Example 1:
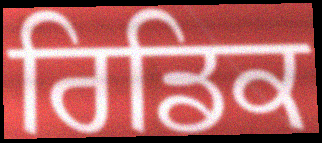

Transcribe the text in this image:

ਰਿਡਿਕ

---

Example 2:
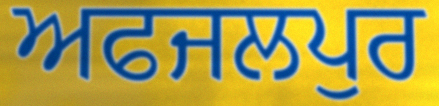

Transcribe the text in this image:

ਅਫਜਲਪੁਰ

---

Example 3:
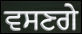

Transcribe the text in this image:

ਵਸਣਗੇ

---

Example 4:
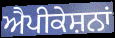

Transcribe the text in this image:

ਐਪੀਕੇਸ਼ਨਾਂ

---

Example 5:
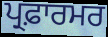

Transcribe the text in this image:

ਪ੍ਰਫ਼ਾਰਮਰ